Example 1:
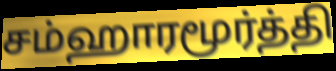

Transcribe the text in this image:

சம்ஹாரமூர்த்தி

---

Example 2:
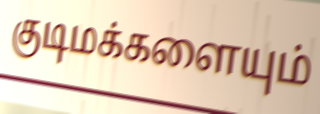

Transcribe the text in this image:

குடிமக்களையும்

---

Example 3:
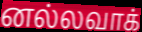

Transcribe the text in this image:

னல்லவாக்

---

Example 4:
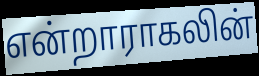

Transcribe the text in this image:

என்றாராகலின்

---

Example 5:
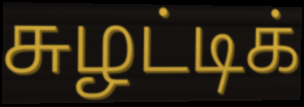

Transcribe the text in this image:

சுழட்டிக்